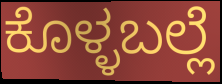
ಕೊಳ್ಳಬಲ್ಲೆ